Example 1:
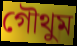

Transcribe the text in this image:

গৌথুম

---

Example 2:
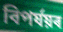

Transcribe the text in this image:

বিপৰ্যয়ৰ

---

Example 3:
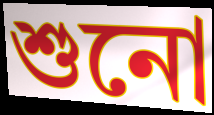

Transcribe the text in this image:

শুনো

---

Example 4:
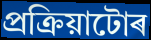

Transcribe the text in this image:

প্ৰক্ৰিয়াটোৰ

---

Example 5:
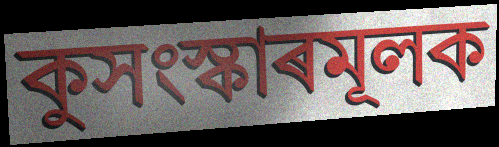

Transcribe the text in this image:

কুসংস্কাৰমূলক